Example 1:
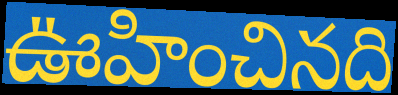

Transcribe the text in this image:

ఊహించినది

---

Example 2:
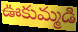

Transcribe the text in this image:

ఊకుమ్మడి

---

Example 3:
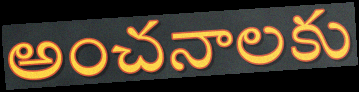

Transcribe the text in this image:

అంచనాలకు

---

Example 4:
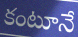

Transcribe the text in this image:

కంటూనే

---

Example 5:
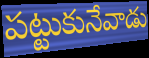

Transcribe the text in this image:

పట్టుకునేవాడు